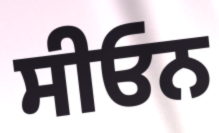
ਸੀਓਨ